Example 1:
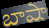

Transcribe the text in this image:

బాషా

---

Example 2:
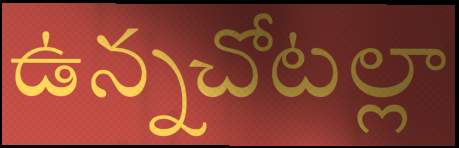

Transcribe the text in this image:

ఉన్నచోటల్లా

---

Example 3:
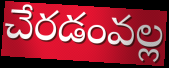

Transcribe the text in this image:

చేరడంవల్ల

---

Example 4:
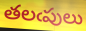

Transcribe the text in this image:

తలఁపులు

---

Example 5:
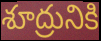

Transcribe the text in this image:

శూద్రునికి